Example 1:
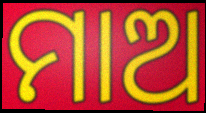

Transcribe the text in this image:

ମାଅ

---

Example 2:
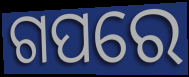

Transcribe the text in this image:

ଗପରେ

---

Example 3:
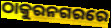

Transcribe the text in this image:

ଠାକୁରନଗରରେ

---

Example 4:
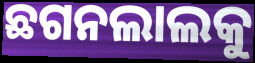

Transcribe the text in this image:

ଛଗନଲାଲକୁ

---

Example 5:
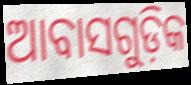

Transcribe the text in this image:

ଆବାସଗୁଡ଼ିକ